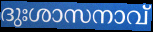
ദുഃശാസനാവ്